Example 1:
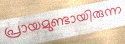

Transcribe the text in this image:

പ്രായമുണ്ടായിരുന്ന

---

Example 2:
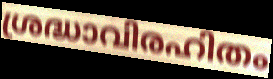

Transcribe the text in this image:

ശ്രദ്ധാവിരഹിതം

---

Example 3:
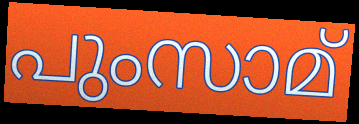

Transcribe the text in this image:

പുംസാമ്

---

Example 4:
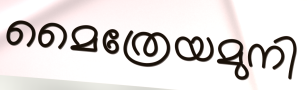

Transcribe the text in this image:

മൈത്രേയമുനി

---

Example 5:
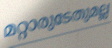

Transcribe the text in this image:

മറ്റാരുടേതുമല്ല